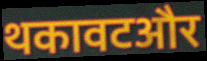
थकावटऔर